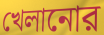
খেলানোর